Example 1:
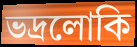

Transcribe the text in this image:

ভদ্রলোকি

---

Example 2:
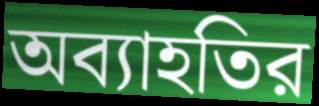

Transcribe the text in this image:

অব্যাহতির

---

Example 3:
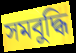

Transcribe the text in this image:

সমবুদ্ধি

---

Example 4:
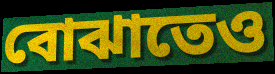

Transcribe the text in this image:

বোঝাতেও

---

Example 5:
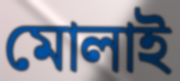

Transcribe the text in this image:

মোলাই